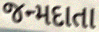
જન્મદાતા